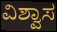
ವಿಶ್ವಾಸ